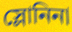
স্লোনিনা